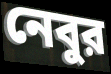
নেবুর